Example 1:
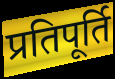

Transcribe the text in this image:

प्रतिपूर्ति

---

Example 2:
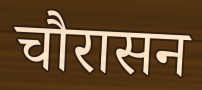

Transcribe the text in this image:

चौरासन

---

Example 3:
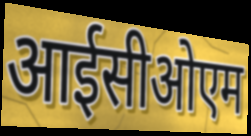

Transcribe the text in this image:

आईसीओएम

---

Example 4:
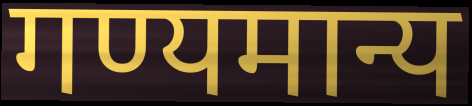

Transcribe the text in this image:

गण्यमान्य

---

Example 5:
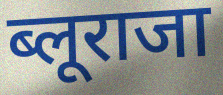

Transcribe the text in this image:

ब्लूराजा